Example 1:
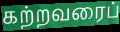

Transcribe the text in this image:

கற்றவரைப்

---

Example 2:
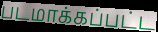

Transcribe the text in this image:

படமாக்கப்பட்ட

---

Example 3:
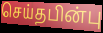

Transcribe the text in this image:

செய்தபின்பு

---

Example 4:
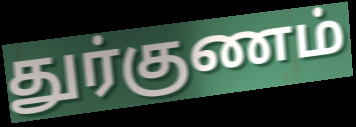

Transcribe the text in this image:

துர்குணம்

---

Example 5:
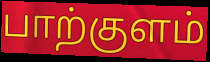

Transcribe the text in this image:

பாற்குளம்